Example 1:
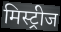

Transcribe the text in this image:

मिस्ट्रीज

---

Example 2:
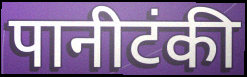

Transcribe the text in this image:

पानीटंकी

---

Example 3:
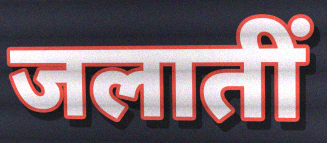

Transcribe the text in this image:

जलातीं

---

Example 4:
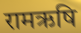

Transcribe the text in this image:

रामऋषि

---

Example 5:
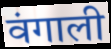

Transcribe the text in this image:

वंगाली